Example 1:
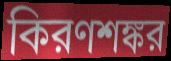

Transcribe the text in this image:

কিরণশঙ্কর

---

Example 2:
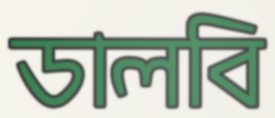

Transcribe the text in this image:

ডালবি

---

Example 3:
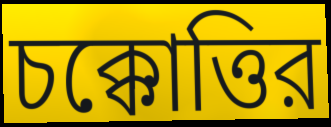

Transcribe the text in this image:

চক্কোত্তির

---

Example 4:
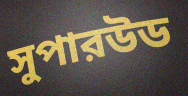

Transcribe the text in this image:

সুপারউড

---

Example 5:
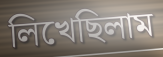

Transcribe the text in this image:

লিখেছিলাম